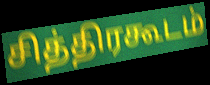
சித்திரகூடம்